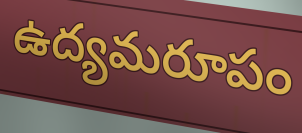
ఉద్యమరూపం